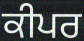
ਕੀਪਰ